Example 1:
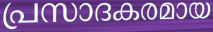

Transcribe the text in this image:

പ്രസാദകരമായ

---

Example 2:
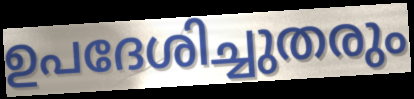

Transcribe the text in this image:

ഉപദേശിച്ചുതരും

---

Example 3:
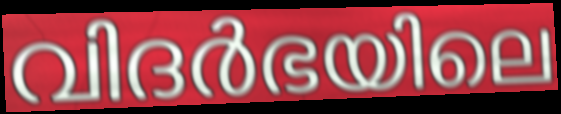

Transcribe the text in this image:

വിദർഭയിലെ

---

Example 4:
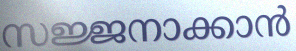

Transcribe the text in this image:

സജ്ജനാക്കാൻ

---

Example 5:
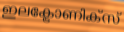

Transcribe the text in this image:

ഇലക്ട്രോണിക്‌സ്